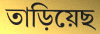
তাড়িয়েছ